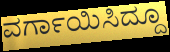
ವರ್ಗಾಯಿಸಿದ್ದೂ